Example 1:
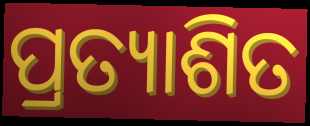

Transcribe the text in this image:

ପ୍ରତ୍ୟାଶିତ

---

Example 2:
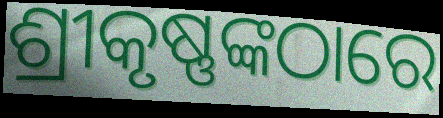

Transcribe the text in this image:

ଶ୍ରୀକୃଷ୍ଣଙ୍କଠାରେ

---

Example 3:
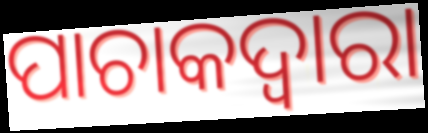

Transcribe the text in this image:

ପାଚାକଦ୍ଵାରା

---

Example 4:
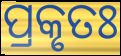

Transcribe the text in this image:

ପ୍ରକୃତଃ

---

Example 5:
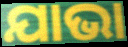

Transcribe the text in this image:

ଯାଭା